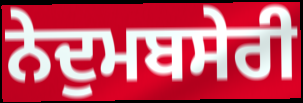
ਨੇਦੁਮਬਸੇਰੀ